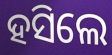
ହସିଲେ